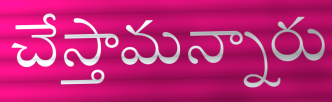
చేస్తామన్నారు